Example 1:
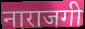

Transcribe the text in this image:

नाराजगी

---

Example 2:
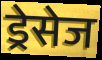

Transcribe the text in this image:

ड्रेसेज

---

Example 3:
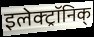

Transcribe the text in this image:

इलेक्ट्रॉनिक्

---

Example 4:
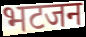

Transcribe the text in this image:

भटजन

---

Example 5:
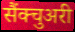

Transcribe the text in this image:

सैंक्चुअरी